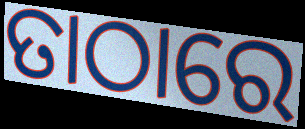
ତାଠାରେ